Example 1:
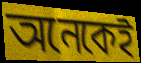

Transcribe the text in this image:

অনেকেই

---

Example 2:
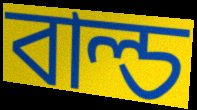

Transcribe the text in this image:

বাল্ড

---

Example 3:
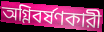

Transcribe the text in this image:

অগ্নিবর্ষণকারী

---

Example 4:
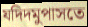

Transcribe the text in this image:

যদিদমুপাসতে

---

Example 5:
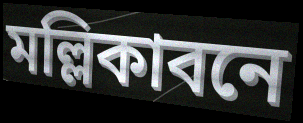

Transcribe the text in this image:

মল্লিকাবনে